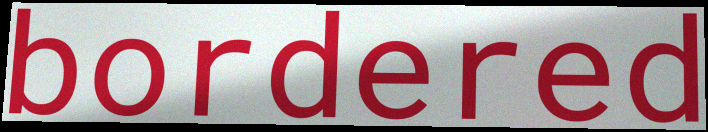
bordered